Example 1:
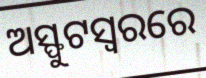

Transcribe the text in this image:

ଅସ୍ଫୁଟସ୍ୱରରେ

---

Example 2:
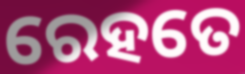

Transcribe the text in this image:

ରେହତେ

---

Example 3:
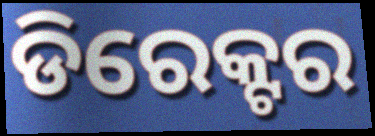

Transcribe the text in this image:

ଡିରେକ୍ଟର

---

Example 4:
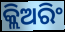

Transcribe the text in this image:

କ୍ଲିଅରିଂ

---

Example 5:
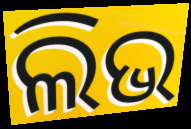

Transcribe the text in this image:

ଲିଭ